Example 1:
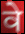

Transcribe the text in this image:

वे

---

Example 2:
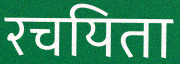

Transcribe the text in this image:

रचयिता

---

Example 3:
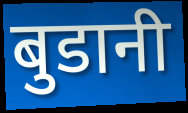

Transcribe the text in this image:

बुडानी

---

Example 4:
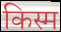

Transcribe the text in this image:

किस्म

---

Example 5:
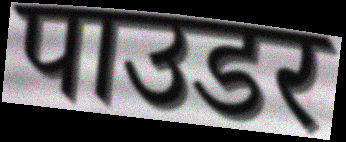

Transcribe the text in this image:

पाउडर